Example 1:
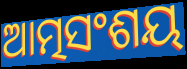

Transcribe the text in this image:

ଆତ୍ମସଂଶୟ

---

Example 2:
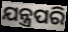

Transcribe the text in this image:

ଯନ୍ତ୍ରପରି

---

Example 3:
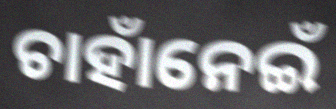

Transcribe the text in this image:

ଚାହାଁନେଇଁ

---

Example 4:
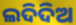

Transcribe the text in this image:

ଲଦିଦିଅ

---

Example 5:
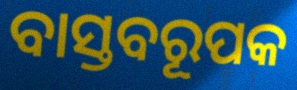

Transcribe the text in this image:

ବାସ୍ତବରୂପକ